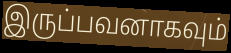
இருப்பவனாகவும்